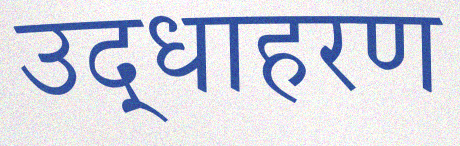
उद्धाहरण